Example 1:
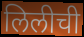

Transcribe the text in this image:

लिलीची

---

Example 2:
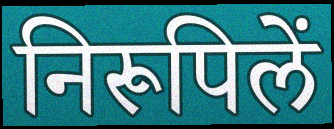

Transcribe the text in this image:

निरूपिलें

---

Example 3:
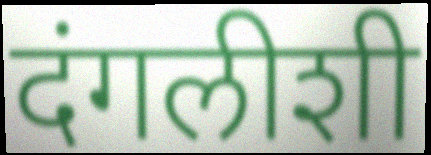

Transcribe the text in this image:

दंगलीशी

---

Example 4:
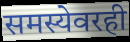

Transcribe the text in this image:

समस्येवरही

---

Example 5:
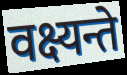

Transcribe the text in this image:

वक्ष्यन्ते